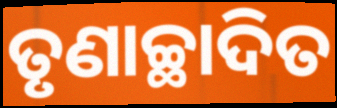
ତୃଣାଚ୍ଛାଦିତ